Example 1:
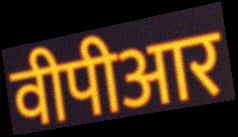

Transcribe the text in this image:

वीपीआर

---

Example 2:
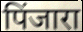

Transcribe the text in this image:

पिंजारा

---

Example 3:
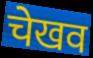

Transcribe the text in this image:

चेखव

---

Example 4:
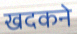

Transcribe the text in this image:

खदकने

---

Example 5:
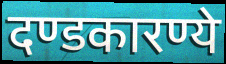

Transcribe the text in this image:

दण्डकारण्ये